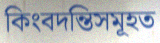
কিংবদন্তিসমূহত